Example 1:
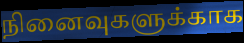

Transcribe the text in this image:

நினைவுகளுக்காக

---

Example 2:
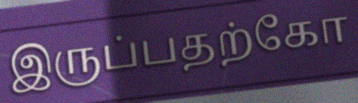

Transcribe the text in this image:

இருப்பதற்கோ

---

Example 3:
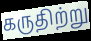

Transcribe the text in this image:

கருதிற்று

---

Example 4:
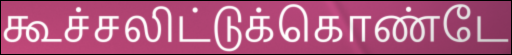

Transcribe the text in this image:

கூச்சலிட்டுக்கொண்டே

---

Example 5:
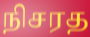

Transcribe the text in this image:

நிசரத